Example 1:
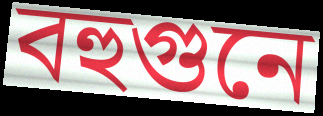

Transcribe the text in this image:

বহুগুনে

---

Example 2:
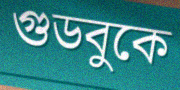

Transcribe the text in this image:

গুডবুকে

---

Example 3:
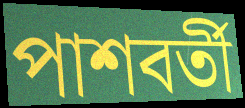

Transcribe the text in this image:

পাশবর্তী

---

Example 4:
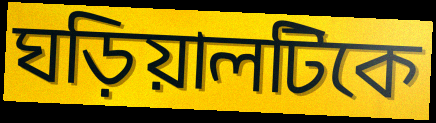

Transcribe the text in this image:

ঘড়িয়ালটিকে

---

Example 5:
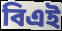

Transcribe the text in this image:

বিএই